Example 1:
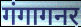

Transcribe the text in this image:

गंगागनर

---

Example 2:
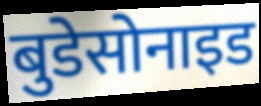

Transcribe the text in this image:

बुडेसोनाइड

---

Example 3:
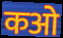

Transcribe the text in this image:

कओ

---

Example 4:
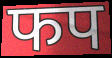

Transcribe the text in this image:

फप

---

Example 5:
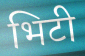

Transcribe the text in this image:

भिटी